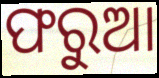
ଫରୁଆ